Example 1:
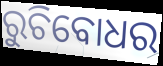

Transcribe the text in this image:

ରୁଚିବୋଧର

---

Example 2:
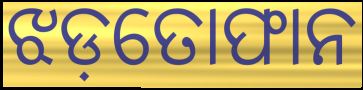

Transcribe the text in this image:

ଝଡ଼ତୋଫାନ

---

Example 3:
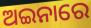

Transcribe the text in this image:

ଅଇନାରେ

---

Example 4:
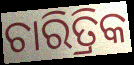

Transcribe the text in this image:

ଚାରିତ୍ରିକ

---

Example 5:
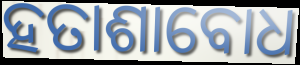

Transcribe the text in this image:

ହତାଶାବୋଧ